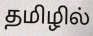
தமிழில்